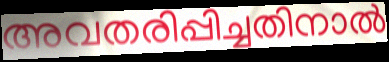
അവതരിപ്പിച്ചതിനാൽ